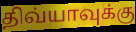
திவ்யாவுக்கு